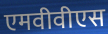
एमवीवीएस